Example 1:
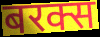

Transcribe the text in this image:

बरक्स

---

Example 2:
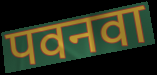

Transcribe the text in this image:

पवनवा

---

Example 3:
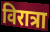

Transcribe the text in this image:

विरात्रा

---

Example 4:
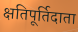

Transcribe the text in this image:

क्षतिपूर्तिदाता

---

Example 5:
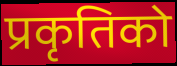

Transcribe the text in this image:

प्रकृतिको